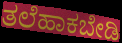
ತಲೆಹಾಕಬೇಡಿ